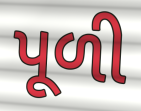
પૂળી